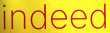
indeed